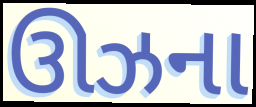
ઊઝના